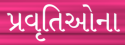
પ્રવૃતિઓના